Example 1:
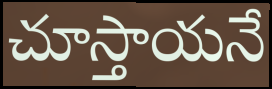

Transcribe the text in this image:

చూస్తాయనే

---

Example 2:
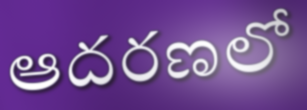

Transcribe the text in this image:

ఆదరణలో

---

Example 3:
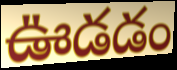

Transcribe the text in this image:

ఊడడం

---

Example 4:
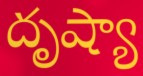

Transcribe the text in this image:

దృష్యా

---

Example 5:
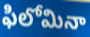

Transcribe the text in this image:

ఫిలోమినా